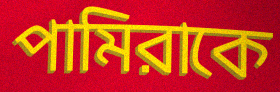
পামিরাকে